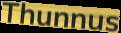
Thunnus